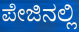
ಪೇಜಿನಲ್ಲಿ